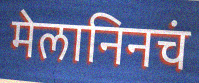
मेलानिनचं